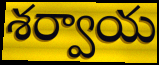
శర్వాయ